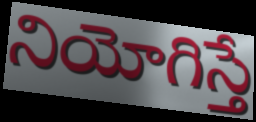
నియోగిస్తే